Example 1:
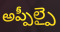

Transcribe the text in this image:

అప్పీల్పై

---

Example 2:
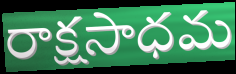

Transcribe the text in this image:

రాక్షసాధమ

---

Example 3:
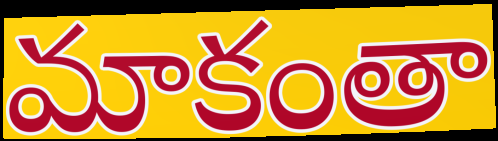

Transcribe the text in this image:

మాకంతా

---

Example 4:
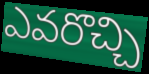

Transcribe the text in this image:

ఎవరొచ్చి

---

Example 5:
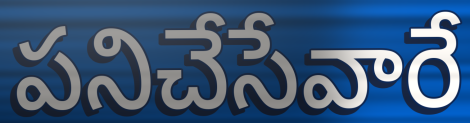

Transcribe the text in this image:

పనిచేసేవారే